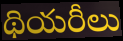
థియరీలు